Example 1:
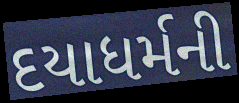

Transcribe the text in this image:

દયાધર્મની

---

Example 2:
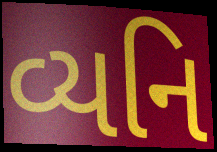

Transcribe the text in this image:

વ્યનિ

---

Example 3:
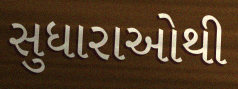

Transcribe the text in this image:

સુધારાઓથી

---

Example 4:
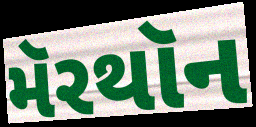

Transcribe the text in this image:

મૅરથૉન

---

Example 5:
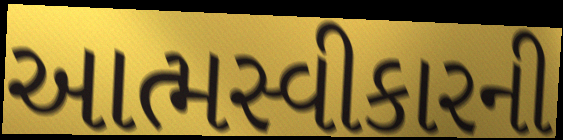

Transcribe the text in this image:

આત્મસ્વીકારની